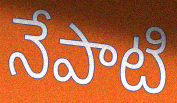
నేపాటి